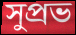
সুপ্রভ